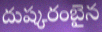
దుష్కరంబైన